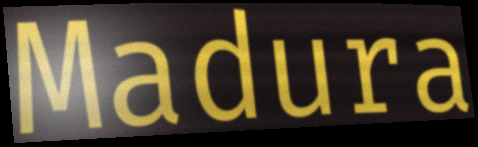
Madura